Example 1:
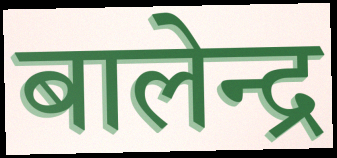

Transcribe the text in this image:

बालेन्द्र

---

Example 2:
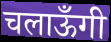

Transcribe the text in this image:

चलाऊँगी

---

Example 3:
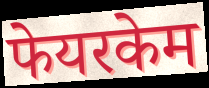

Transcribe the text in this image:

फेयरकेम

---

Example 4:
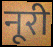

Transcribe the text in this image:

नूरी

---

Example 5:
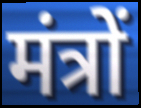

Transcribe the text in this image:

मंत्रों